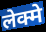
लेक्मे